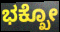
ಭಕ್ಖೋ